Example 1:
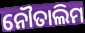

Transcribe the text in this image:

ନୌତାଲିମ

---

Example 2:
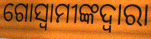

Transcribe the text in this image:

ଗୋସ୍ୱାମୀଙ୍କଦ୍ୱାରା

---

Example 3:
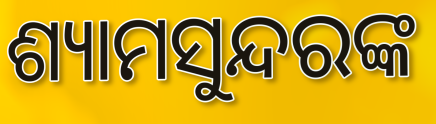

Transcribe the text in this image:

ଶ୍ୟାମସୁନ୍ଦରଙ୍କ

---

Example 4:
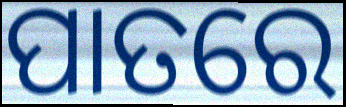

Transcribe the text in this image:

ପାତରେ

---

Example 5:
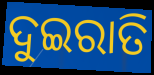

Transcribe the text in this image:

ଦୁଇରାତି